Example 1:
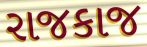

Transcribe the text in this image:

રાજકાજ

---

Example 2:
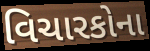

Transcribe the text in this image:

વિચારકોના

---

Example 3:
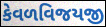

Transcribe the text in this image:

કેવળવિજયજી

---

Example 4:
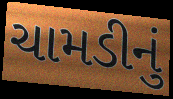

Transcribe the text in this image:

ચામડીનું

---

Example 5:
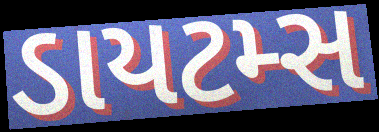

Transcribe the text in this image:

ડાયટમ્સ